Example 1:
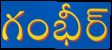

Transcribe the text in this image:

గంభీర్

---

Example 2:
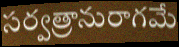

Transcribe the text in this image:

సర్వత్రానురాగమే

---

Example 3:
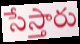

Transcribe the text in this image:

సేస్తారు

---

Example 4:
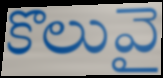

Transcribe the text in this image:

కొలువై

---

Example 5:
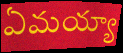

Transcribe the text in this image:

ఏమయ్యా